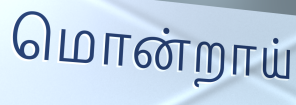
மொன்றாய்